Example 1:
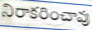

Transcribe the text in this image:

నిరాకరించావు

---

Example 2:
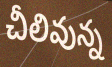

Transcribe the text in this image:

చీలివున్న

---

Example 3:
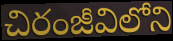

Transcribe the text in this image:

చిరంజీవిలోని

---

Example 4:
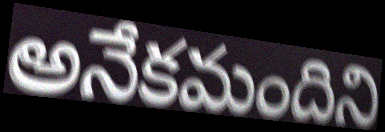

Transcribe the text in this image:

అనేకమందిని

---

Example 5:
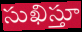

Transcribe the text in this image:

సుఖిస్తూ